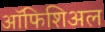
ऑफिशिअल